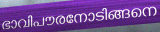
ഭാവിപൗരനോടിങ്ങനെ